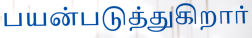
பயன்படுத்துகிறார்